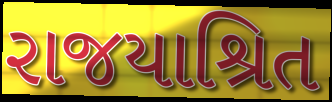
રાજયાશ્રિત